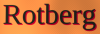
Rotberg